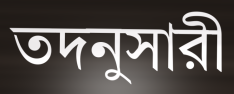
তদনুসারী